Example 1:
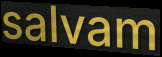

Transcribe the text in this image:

salvam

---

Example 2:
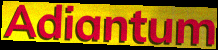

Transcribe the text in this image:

Adiantum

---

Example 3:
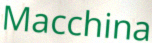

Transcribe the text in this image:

Macchina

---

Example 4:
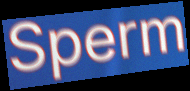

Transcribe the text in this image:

Sperm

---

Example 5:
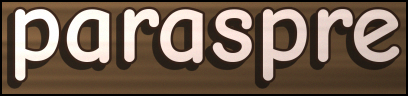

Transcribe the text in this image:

paraspre